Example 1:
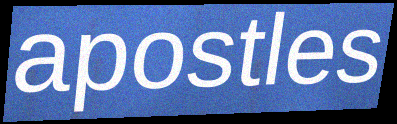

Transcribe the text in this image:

apostles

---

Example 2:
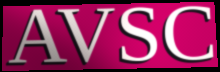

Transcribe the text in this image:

AVSC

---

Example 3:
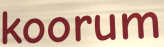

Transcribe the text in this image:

koorum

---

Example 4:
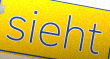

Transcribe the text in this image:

sieht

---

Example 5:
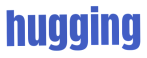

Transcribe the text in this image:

hugging